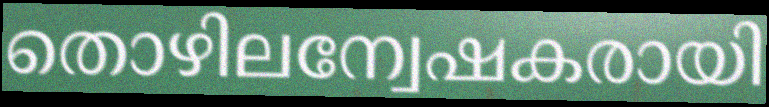
തൊഴിലന്വേഷകരായി